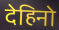
देहिनो